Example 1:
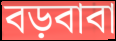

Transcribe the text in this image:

বড়বাবা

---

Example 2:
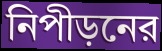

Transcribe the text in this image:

নিপীড়নের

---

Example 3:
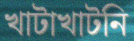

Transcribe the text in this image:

খাটাখাটনি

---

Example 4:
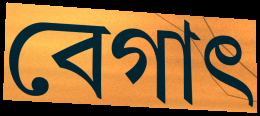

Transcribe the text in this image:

বেগাৎ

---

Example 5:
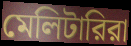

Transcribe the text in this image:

মেলিটারিরা